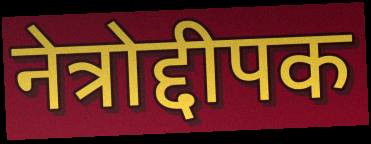
नेत्रोद्दीपक